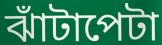
ঝাঁটাপেটা